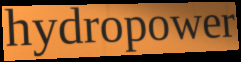
hydropower